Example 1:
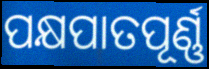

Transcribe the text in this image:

ପକ୍ଷପାତପୂର୍ଣ୍ଣ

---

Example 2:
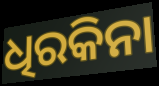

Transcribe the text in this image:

ଧିରକିନା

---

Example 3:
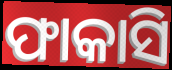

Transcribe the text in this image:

ଫାକାସି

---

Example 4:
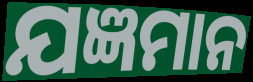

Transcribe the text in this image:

ଯଜ୍ଞମାନ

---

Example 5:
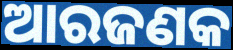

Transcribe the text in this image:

ଆରଜଣକ